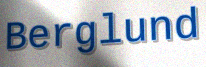
Berglund